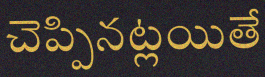
చెప్పినట్లయితే